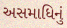
અસમાધિનું